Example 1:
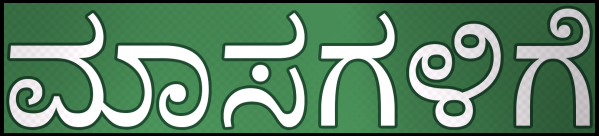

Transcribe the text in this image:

ಮಾಸಗಳಿಗೆ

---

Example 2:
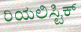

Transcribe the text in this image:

ರಿಯಲಿಸ್ಟಿಕ್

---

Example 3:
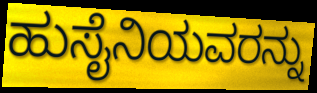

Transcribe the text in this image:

ಹುಸೈನಿಯವರನ್ನು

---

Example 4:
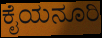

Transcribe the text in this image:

ಕೈಯನೂರಿ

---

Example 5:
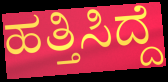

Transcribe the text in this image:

ಹತ್ತಿಸಿದ್ದೆ